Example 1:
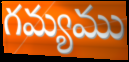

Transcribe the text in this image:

గమ్యము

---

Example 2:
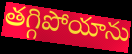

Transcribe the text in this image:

తగ్గిపోయాను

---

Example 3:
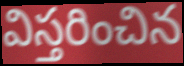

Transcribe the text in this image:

విస్తరించిన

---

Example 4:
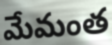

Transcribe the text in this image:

మేమంత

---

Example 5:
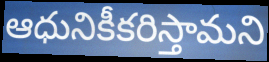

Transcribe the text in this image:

ఆధునికీకరిస్తామని